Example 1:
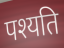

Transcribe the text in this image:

पश्यति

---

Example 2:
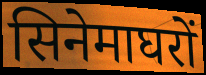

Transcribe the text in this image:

सिनेमाघरों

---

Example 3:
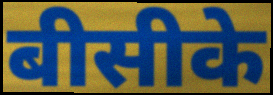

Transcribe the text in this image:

बीसीके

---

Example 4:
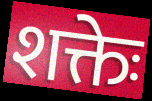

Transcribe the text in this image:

शक्तेः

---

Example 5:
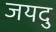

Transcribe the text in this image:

जयदु